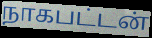
நாகபட்டன்